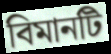
বিমানটি